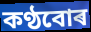
কণ্ঠবোৰ